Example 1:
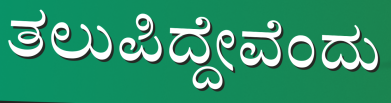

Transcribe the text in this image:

ತಲುಪಿದ್ದೇವೆಂದು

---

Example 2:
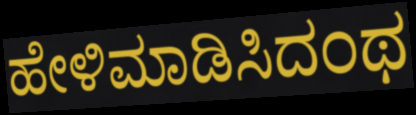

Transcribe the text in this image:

ಹೇಳಿಮಾಡಿಸಿದಂಥ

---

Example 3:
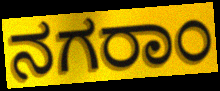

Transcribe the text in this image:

ನಗರಾಂ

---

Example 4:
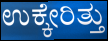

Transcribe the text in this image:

ಉಕ್ಕೇರಿತ್ತು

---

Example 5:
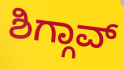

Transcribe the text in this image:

ಶಿಗ್ಗಾವ್